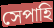
সেপাহি